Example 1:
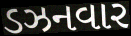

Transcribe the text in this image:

ડઝનવાર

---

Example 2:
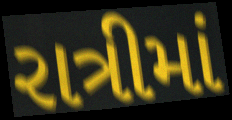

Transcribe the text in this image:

રાત્રીમાં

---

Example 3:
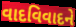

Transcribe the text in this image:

વાદવિવાદને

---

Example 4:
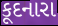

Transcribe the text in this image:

કૂદનારા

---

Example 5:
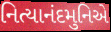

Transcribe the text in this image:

નિત્યાનંદમુનિએ